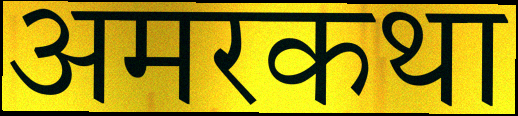
अमरकथा